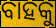
ବାହକୁ